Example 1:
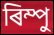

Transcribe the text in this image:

ৰিম্পু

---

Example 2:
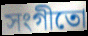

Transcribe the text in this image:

সংগীতো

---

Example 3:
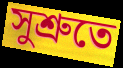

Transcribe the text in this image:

সুশ্ৰুতে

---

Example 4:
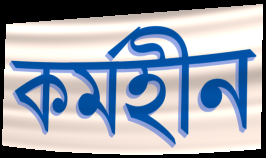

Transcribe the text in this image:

কৰ্মহীন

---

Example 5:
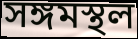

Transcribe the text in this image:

সঙ্গমস্থল